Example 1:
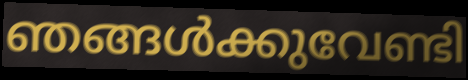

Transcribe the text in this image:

ഞങ്ങൾക്കുവേണ്ടി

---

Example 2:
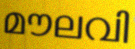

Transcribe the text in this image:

മൗലവി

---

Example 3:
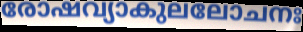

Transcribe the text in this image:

രോഷവ്യാകുലലോചനഃ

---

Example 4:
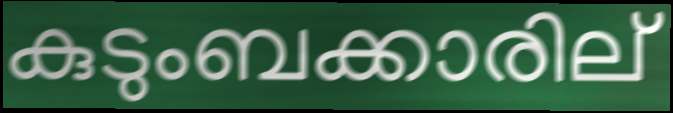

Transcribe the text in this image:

കുടുംബക്കാരില്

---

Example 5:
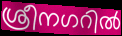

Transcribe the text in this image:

ശ്രീനഗറിൽ